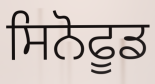
ਸਿਨੋਫੂਡ